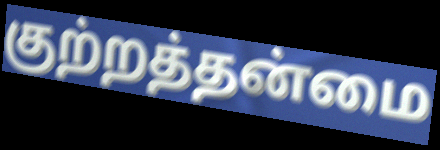
குற்றத்தன்மை